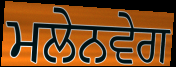
ਮਲੇਨਵੇਗ